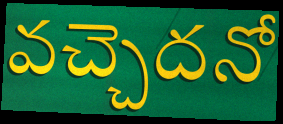
వచ్చెదనో